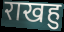
राखहु